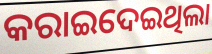
କରାଇଦେଇଥିଲା